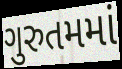
ગુરુતમમાં